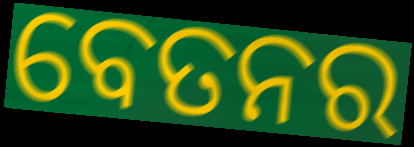
ବେତନର